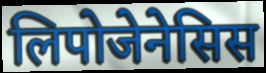
लिपोजेनेसिस